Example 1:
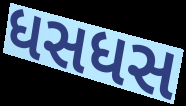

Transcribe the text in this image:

ધસધસ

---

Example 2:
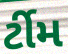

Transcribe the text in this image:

ર્ટીમ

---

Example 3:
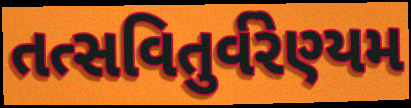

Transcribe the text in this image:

તત્સવિતુર્વરેણ્યમ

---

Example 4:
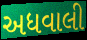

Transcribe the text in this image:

અધવાલી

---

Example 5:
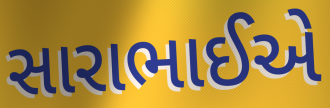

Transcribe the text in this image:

સારાભાઈએ